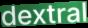
dextral